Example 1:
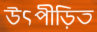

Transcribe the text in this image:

উৎপীড়িত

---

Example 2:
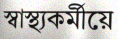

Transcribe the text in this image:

স্বাস্থ্যকৰ্মীয়ে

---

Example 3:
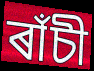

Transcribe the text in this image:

ৰাঁচী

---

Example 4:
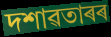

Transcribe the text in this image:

দশাৱতাৰৰ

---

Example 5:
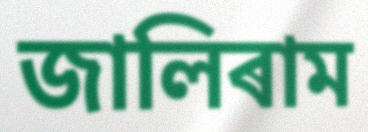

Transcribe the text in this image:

জালিৰাম